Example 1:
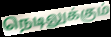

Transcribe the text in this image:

நெடிலுக்கும்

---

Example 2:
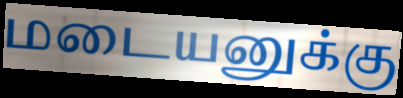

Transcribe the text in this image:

மடையனுக்கு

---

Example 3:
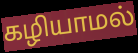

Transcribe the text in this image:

கழியாமல்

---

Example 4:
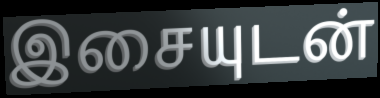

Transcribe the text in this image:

இசையுடன்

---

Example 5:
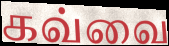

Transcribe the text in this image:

கவ்வை